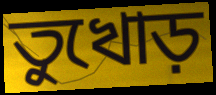
তুখোড়